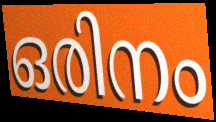
ഒരിനം